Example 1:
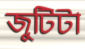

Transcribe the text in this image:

জুটিটা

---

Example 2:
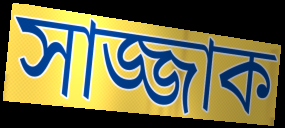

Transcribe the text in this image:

সাজ্জাক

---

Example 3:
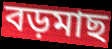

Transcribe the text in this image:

বড়মাছ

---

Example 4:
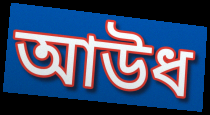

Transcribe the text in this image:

আউধ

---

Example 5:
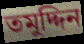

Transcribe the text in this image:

তমুদ্দিন